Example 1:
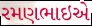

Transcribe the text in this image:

રમણભાઇએ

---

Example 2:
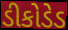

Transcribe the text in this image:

ડીકોડેડ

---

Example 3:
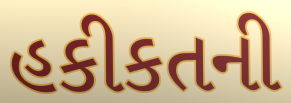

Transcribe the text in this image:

હકીકતની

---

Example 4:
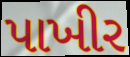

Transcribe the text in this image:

પાખીર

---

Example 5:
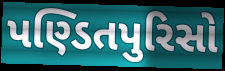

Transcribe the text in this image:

પણ્ડિતપુરિસો